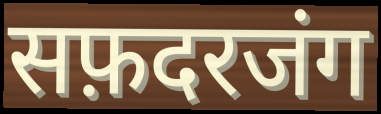
सफ़दरजंग